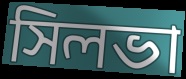
সিলভা